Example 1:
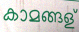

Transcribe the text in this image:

കാമങ്ങള്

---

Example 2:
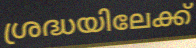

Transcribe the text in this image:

ശ്രദ്ധയിലേക്ക്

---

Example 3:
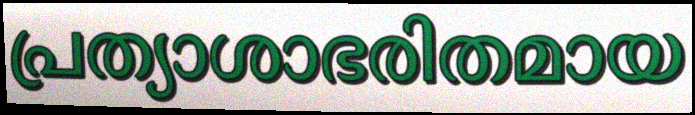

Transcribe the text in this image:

പ്രത്യാശാഭരിതമായ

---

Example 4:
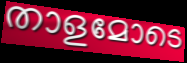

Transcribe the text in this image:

താളമോടെ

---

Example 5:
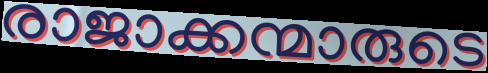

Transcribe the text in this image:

രാജാക്കന്മാരുടെ